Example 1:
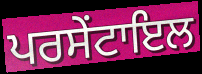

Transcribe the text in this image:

ਪਰਸੇਂਟਾਇਲ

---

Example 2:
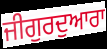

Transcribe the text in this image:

ਜੀਗੁਰਦੁਆਰਾ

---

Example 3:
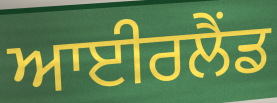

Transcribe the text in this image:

ਆਈਰਲੈਂਡ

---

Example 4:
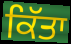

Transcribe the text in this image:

ਕਿੱਤਾ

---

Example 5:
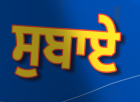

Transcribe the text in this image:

ਸੁਬਾਏ